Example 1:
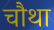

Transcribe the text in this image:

चौथा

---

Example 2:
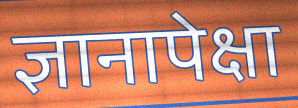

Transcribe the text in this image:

ज्ञानापेक्षा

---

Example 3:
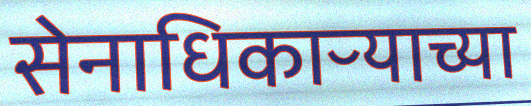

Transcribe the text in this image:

सेनाधिकाऱ्याच्या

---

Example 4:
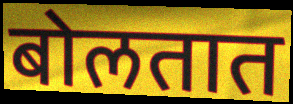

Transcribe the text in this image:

बोलतात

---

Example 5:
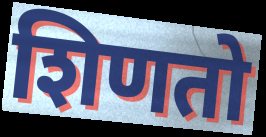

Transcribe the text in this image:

शिणतो